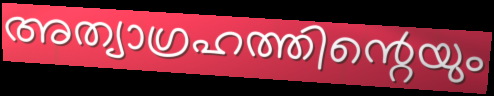
അത്യാഗ്രഹത്തിന്റെയും